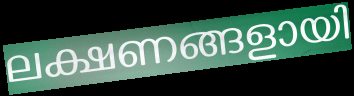
ലക്ഷണങ്ങളായി